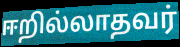
ஈறில்லாதவர்